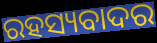
ରହସ୍ୟବାଦର